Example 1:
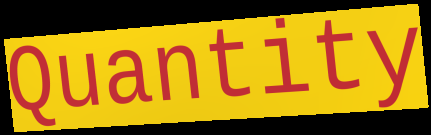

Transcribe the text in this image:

Quantity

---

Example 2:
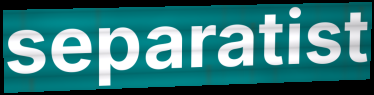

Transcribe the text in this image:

separatist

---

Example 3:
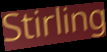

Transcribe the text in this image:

Stirling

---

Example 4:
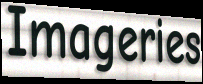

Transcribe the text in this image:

Imageries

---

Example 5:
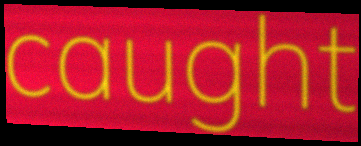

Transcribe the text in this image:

caught